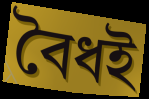
বৈধই